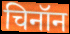
चिनॉन